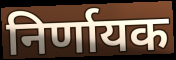
निर्णायक